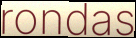
rondas